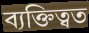
ব্যক্তিত্বত